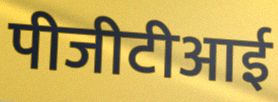
पीजीटीआई